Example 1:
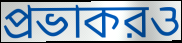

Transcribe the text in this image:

প্রভাকরও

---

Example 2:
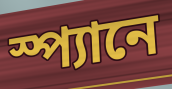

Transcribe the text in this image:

স্প্যানে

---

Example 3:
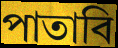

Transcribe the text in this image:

পাতাবি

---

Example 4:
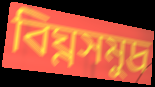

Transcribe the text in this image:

বিঘ্নসমুদ্র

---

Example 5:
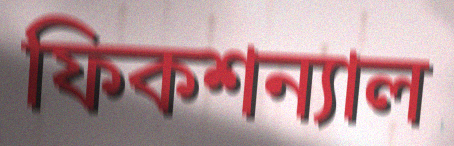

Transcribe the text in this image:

ফিকশন্যাল